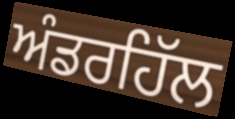
ਅੰਡਰਹਿੱਲ